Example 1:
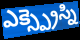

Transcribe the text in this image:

ఎక్స్ప్రెస్ని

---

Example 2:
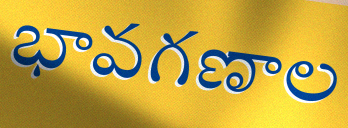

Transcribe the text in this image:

భావగణాల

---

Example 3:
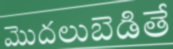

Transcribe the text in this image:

మొదలుబెడితే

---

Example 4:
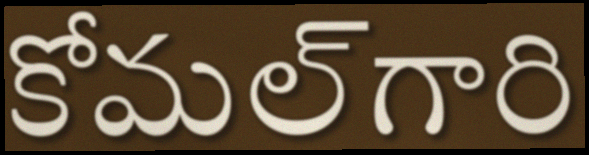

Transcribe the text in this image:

కోమల్‌గారి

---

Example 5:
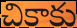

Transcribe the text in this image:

చికాకు